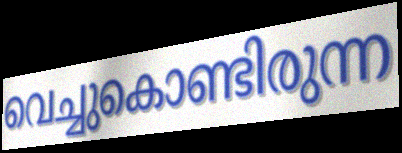
വെച്ചുകൊണ്ടിരുന്ന